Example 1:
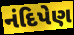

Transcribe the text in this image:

નંદિપેણ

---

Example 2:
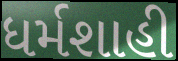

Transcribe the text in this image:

ધર્મશાહી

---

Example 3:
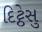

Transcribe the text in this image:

દિટ્ઠેસુ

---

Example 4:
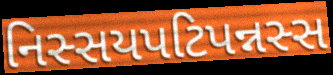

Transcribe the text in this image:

નિસ્સયપટિપન્નસ્સ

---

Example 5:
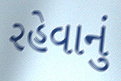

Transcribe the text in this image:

રહેવાનું